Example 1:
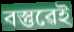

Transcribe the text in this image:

বস্তুৱেই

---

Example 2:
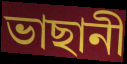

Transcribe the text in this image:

ভাছানী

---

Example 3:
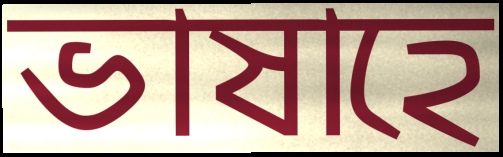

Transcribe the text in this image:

ভাষাহে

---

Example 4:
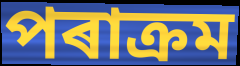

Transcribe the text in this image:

পৰাক্ৰম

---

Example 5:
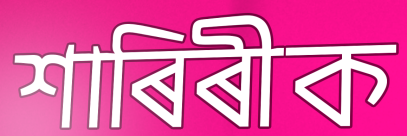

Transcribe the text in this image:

শাৰিৰীক